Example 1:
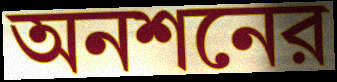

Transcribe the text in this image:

অনশনের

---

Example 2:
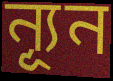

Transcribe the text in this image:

ন্যূন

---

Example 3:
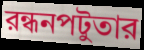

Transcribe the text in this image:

রন্ধনপটুতার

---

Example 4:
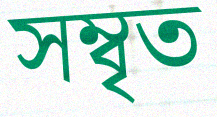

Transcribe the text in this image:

সম্বৃত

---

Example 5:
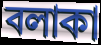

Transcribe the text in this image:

বলাকা